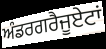
ਅੰਡਰਗਰੈਜੂਏਟਾਂ